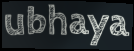
ubhaya